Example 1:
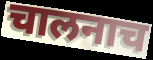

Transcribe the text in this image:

चालनाच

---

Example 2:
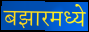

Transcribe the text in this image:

बझारमध्ये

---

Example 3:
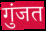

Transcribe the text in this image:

गुंजत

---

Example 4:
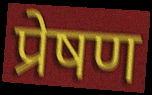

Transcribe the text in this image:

प्रेषण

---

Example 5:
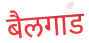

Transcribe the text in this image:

बैलगाड